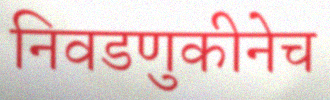
निवडणुकीनेच